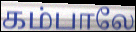
கம்பாலே